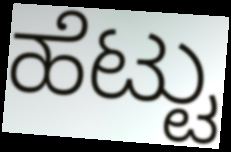
ಹೆಟ್ಟು